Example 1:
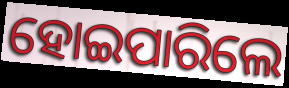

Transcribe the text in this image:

ହୋଇପାରିଲେ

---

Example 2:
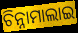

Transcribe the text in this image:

ଚିନ୍ନାମାଲାଇ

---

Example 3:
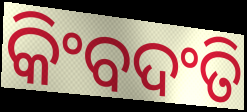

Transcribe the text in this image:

କିଂବଦଂତି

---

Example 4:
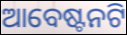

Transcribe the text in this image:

ଆବେଷ୍ଟନଟି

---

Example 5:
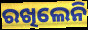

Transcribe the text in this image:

ରଖିଲେନି